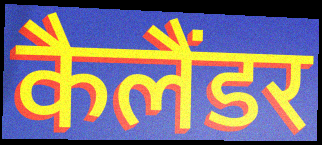
कैलैंडर